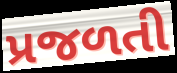
પ્રજળતી